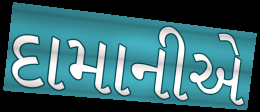
દામાનીએ